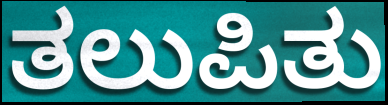
ತಲುಪಿತು